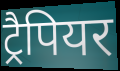
ट्रैपियर